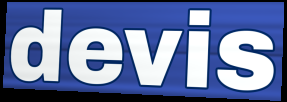
devis